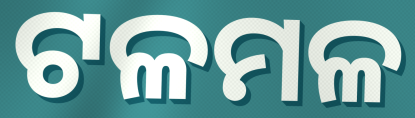
ଟଳମଳ